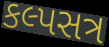
કલ્પસત્ર